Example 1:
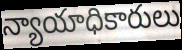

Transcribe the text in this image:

న్యాయాధికారులు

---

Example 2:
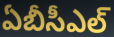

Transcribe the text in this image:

ఏబీసీఎల్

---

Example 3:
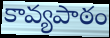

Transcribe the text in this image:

కావ్యపాఠం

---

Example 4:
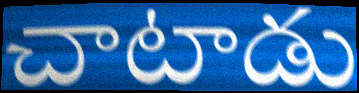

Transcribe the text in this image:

చాటాడు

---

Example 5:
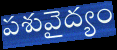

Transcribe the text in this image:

పశువైద్యం